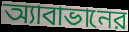
অ্যাবাভানের